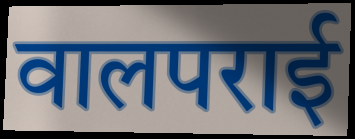
वालपराई